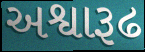
અશ્વારૂઢ